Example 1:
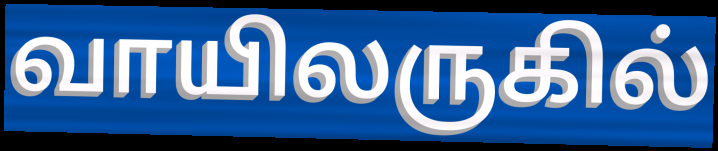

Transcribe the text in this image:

வாயிலருகில்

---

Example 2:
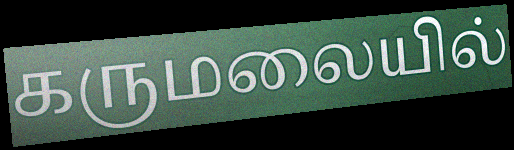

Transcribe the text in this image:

கருமலையில்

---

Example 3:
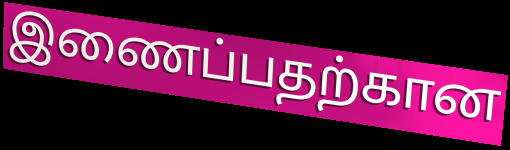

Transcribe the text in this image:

இணைப்பதற்கான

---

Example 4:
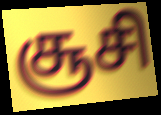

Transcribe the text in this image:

சூசி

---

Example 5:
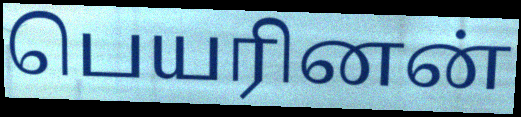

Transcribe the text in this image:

பெயரினன்